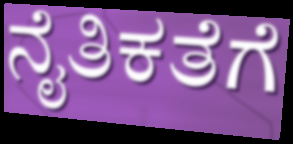
ನೈತಿಕತೆಗೆ